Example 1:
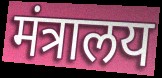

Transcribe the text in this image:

मंत्रालय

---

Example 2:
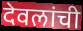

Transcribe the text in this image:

देवलांची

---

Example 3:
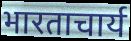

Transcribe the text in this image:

भारताचार्य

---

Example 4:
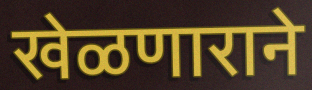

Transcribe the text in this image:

खेळणाराने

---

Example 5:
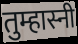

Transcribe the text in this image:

तुम्हास्नी